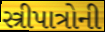
સ્ત્રીપાત્રોની